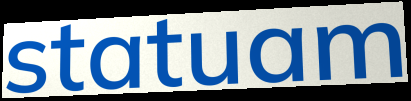
statuam